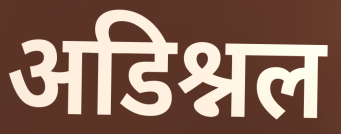
अडिश्नल